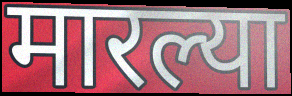
मारल्या